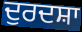
ਦੁਰਦਸ਼ਾ